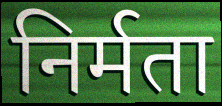
निर्मता